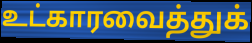
உட்காரவைத்துக்